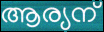
ആര്യന്